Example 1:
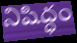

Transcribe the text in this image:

నిషిద్ధం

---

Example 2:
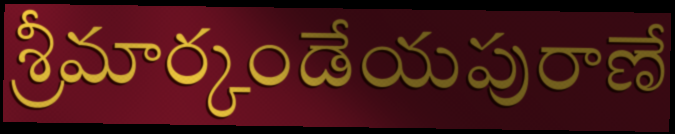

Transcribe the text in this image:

శ్రీమార్కండేయపురాణే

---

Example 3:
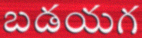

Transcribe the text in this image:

బడయగ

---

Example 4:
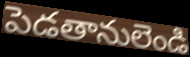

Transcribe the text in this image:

పెడతానులెండి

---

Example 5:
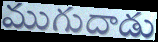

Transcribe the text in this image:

ముగుదాడు